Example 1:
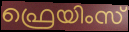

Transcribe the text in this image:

ഫ്രെയിംസ്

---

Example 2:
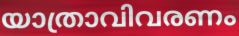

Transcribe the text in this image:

യാത്രാവിവരണം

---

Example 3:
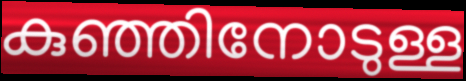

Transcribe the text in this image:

കുഞ്ഞിനോടുള്ള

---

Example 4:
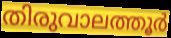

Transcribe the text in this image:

തിരുവാലത്തൂർ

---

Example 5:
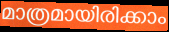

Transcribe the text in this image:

മാത്രമായിരിക്കാം